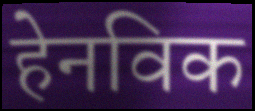
हेनविक